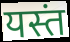
यस्तं